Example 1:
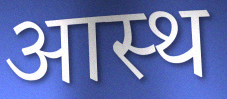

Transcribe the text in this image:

आस्थ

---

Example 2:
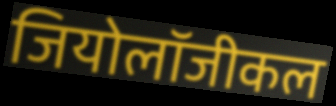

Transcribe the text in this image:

जियोलॉजीकल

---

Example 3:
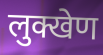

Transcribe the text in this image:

लुक्खेण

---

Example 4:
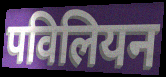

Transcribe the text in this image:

पविलियन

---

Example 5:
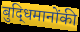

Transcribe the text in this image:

बुद्धिमानोंकी